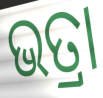
ଭତ୍ରା